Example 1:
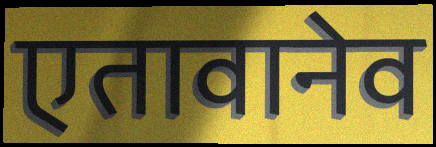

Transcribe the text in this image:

एतावानेव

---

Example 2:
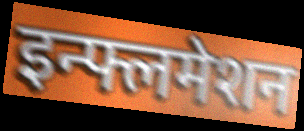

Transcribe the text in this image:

इन्फ्लमेशन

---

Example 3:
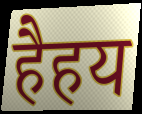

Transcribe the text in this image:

हैहय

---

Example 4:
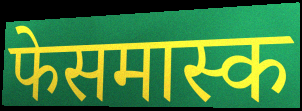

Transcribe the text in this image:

फेसमास्क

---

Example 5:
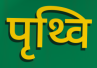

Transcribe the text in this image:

पृथ्वि